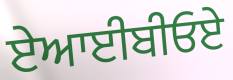
ਏਆਈਬੀਓਏ